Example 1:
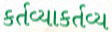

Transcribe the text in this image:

કર્તવ્યાકર્તવ્ય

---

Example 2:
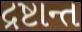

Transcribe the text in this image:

દ્રષ્ટાન્ત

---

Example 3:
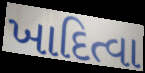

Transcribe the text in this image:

ખાદિત્વા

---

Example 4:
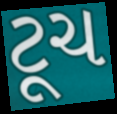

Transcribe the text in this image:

ટૂચ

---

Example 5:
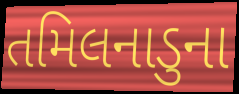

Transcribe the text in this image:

તમિલનાડુના